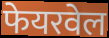
फेयरवेल